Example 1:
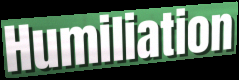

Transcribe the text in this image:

Humiliation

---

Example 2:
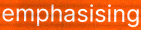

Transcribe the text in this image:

emphasising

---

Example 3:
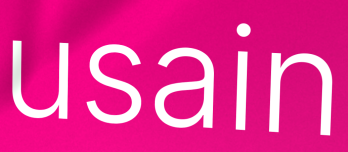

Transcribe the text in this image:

usain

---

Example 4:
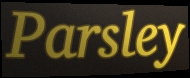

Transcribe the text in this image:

Parsley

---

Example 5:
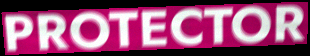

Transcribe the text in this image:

PROTECTOR